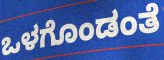
ಒಳಗೊಂಡಂತೆ